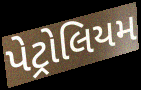
પેટ્રોલિયમ